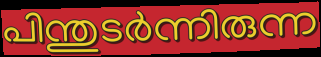
പിന്തുടർന്നിരുന്ന